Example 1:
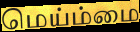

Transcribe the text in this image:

மெய்ம்மை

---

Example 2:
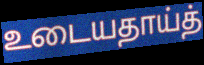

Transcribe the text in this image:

உடையதாய்த்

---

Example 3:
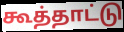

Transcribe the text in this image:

கூத்தாட்டு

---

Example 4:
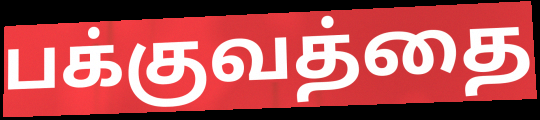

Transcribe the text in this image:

பக்குவத்தை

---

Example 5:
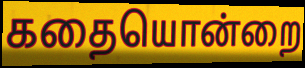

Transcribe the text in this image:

கதையொன்றை